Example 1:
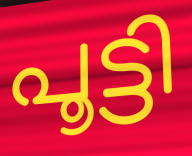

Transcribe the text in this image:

പൂട്ടി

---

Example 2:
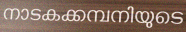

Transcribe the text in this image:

നാടകക്കമ്പനിയുടെ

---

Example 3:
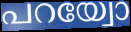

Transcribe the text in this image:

പറയ്വോ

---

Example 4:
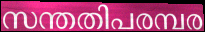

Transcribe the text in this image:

സന്തതിപരമ്പര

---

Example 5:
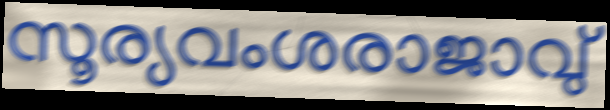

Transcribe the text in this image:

സൂര്യവംശരാജാവു്